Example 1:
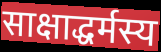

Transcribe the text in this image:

साक्षाद्धर्मस्य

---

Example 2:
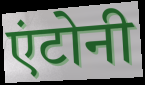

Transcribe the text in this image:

एंटोनी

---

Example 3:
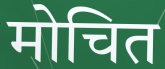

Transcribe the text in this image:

मोचित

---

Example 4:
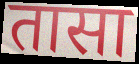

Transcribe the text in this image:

तासा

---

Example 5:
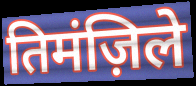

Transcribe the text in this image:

तिमंज़िले